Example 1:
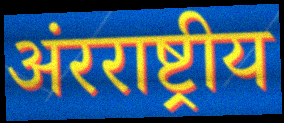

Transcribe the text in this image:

अंरराष्ट्रीय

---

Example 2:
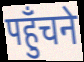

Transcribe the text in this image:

पहुंँचने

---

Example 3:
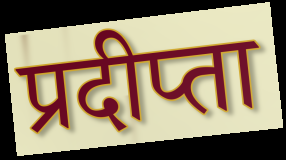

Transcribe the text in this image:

प्रदीप्ता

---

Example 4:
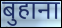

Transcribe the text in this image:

बुहाना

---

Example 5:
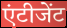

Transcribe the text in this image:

एंटीजेंट